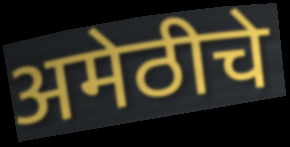
अमेठीचे